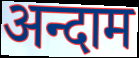
अन्दाम